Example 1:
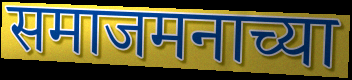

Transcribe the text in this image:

समाजमनाच्या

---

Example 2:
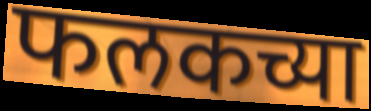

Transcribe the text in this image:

फलकच्या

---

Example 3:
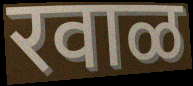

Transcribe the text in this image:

रवाळ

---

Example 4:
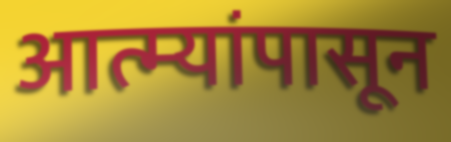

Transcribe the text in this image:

आत्म्यांपासून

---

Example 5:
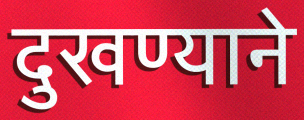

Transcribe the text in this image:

दुखण्याने